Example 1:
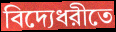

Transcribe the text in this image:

বিদ্যেধরীতে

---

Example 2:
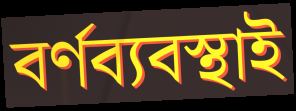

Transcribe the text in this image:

বর্ণব্যবস্থাই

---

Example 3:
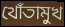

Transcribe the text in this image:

থোঁতামুখ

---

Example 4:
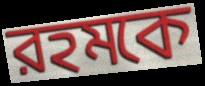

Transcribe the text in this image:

রহমকে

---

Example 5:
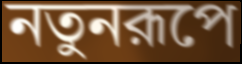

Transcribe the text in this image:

নতুনরূপে